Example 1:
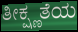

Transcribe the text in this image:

ತೀಕ್ಷ್ಣತೆಯ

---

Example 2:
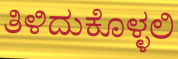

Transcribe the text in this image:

ತಿಳಿದುಕೊಳ್ಳಲಿ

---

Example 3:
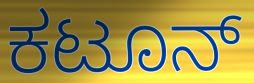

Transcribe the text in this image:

ಕಟೂನ್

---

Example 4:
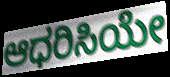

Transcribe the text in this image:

ಆಧರಿಸಿಯೇ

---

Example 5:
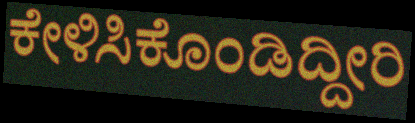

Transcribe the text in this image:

ಕೇಳಿಸಿಕೊಂಡಿದ್ದೀರಿ